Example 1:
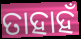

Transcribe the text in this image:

ତାହାହଁ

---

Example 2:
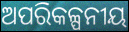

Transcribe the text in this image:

ଅପରିକଳ୍ପନୀୟ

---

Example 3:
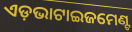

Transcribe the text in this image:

ଏଡ଼ଭାଟାଇଜମେଣ୍ଟ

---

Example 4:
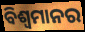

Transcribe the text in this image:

ବିଶ୍ୱମାନର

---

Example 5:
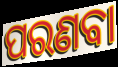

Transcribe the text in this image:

ପରଣବା